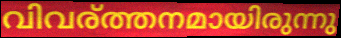
വിവര്ത്തനമായിരുന്നു